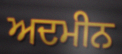
ਅਦਮੀਨ